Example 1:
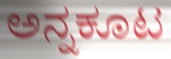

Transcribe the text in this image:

ಅನ್ನಕೂಟ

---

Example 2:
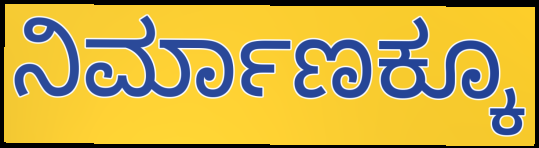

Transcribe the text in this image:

ನಿರ್ಮಾಣಕ್ಕೂ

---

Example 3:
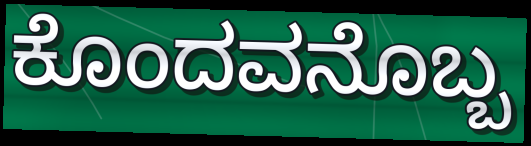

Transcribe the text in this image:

ಕೊಂದವನೊಬ್ಬ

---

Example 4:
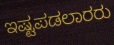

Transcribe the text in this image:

ಇಷ್ಟಪಡಲಾರರು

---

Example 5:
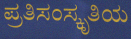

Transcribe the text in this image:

ಪ್ರತಿಸಂಸ್ಕೃತಿಯ